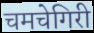
चमचेगिरी